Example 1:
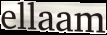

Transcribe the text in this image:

ellaam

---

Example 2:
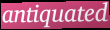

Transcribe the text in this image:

antiquated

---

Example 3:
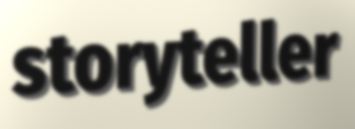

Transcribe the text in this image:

storyteller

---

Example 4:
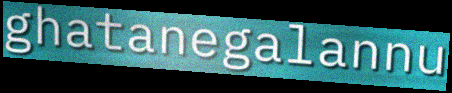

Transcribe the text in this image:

ghatanegalannu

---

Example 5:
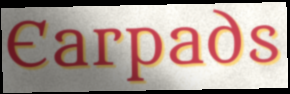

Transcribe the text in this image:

Earpads